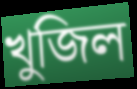
খুজিল